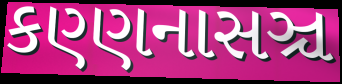
કણ્ણનાસઞ્ચ